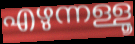
എഴുന്നള്ളൂ